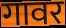
गावर